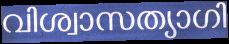
വിശ്വാസത്യാഗി